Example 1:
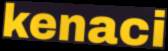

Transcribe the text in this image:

kenaci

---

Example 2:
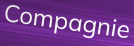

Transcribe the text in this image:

Compagnie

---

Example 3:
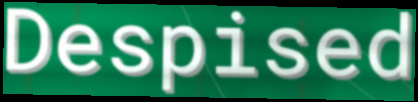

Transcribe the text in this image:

Despised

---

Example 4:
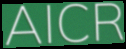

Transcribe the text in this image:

AICR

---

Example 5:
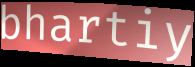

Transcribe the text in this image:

bhartiy